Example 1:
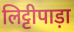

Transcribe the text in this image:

लिट्टीपाड़ा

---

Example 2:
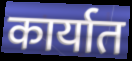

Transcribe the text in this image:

कार्यात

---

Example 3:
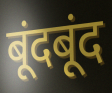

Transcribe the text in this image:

बूंदबूंद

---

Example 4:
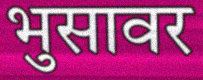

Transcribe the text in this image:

भुसावर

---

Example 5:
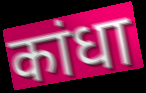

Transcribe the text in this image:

कांधा